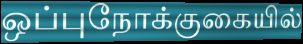
ஒப்புநோக்குகையில்